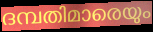
ദമ്പതിമാരെയും